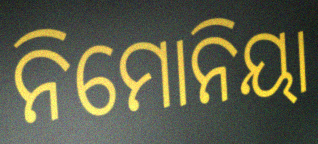
ନିମୋନିୟା